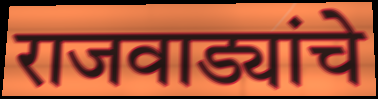
राजवाड्यांचे